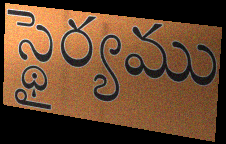
స్థైర్యము